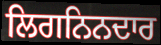
ਲਿਗਨਿਨਦਾਰ